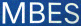
MBES